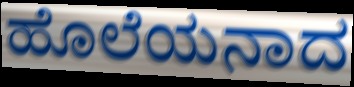
ಹೊಲೆಯನಾದ